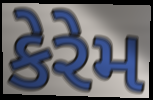
કેરેમ